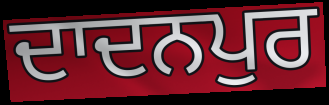
ਦਾਦਨਪੁਰ